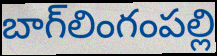
బాగ్‌లింగంపల్లి